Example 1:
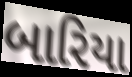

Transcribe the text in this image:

બારિયા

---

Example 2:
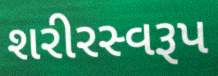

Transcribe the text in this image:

શરીરસ્વરૂપ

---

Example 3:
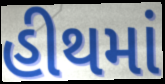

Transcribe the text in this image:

હીથમાં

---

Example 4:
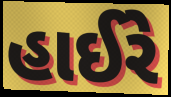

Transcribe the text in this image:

હાઈરે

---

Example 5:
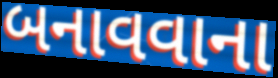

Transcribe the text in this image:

બનાવવાના